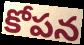
కోపన